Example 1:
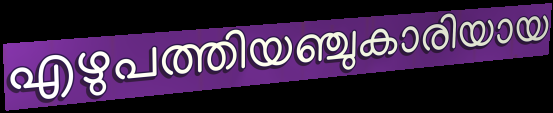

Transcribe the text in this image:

എഴുപത്തിയഞ്ചുകാരിയായ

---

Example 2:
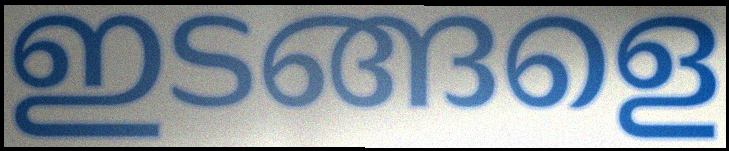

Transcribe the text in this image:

ഇടങ്ങളെ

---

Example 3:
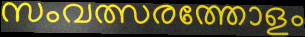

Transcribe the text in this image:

സംവത്സരത്തോളം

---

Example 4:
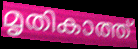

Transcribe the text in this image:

മൃതികാത്ത്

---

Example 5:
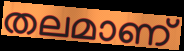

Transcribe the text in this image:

തലമാണ്